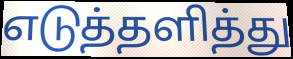
எடுத்தளித்து